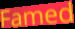
Famed